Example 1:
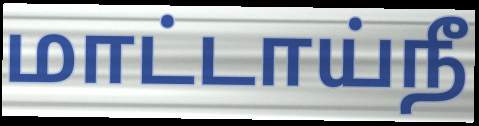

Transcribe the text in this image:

மாட்டாய்நீ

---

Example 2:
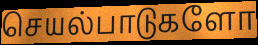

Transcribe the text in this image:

செயல்பாடுகளோ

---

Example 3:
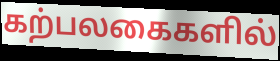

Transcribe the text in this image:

கற்பலகைகளில்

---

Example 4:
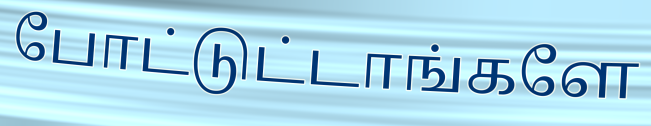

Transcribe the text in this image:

போட்டுட்டாங்களே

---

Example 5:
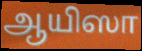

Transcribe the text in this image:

ஆயிஸா